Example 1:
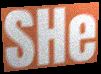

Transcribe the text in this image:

SHe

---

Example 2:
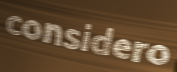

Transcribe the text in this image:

considero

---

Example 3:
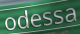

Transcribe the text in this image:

odessa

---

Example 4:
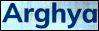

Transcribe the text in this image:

Arghya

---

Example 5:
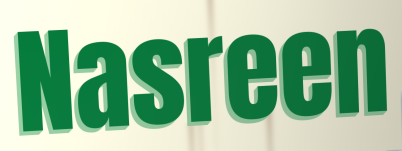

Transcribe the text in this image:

Nasreen